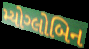
મ્યોગ્લોબિન